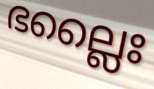
ഭല്ലൈഃ